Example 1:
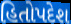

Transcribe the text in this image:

હિતોપદેશ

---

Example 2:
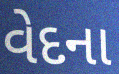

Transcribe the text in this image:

વેદના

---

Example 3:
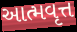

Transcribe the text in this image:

આત્મવૃત્ત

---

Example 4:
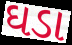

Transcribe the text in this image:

ઘડા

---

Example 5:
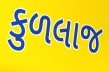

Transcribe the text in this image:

કુળલાજ